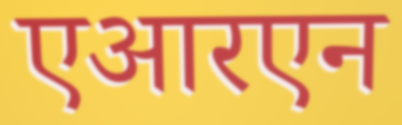
एआरएन